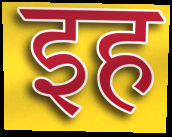
इह